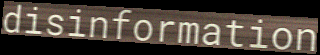
disinformation